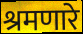
श्रमणारे